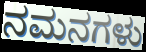
ನಮನಗಳು